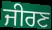
ਜੀਰਣ